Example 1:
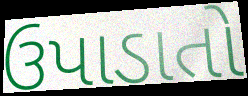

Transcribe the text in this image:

ઉપાડાતો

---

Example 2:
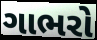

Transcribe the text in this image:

ગાભરો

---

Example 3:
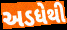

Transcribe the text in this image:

અડધેથી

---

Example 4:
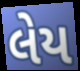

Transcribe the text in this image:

લેય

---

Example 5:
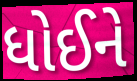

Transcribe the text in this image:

ધોઈને